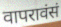
वापरावंसं